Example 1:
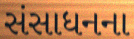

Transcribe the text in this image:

સંસાધનના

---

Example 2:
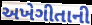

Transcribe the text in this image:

અખેગીતાની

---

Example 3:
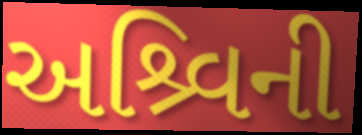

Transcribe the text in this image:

અશ્ર્વિની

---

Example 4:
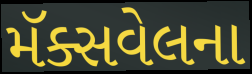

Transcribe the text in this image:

મૅક્સવેલના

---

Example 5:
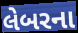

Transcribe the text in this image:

લેબરના